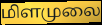
மிளமுலை